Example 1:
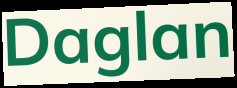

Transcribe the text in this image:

Daglan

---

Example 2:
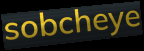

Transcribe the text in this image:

sobcheye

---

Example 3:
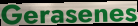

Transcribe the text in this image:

Gerasenes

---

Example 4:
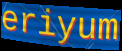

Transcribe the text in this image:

eriyum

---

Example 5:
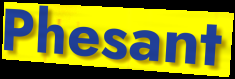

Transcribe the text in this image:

Phesant